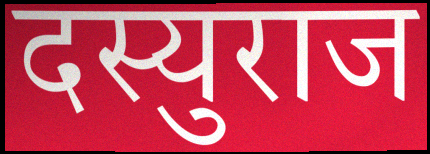
दस्युराज